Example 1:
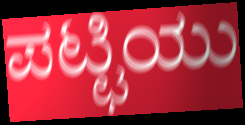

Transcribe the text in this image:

ಪಟ್ಟಿಯು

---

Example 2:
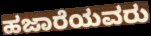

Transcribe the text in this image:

ಹಜಾರೆಯವರು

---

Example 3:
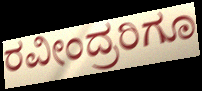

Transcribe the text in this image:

ರವೀಂದ್ರರಿಗೂ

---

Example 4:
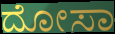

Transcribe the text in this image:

ದೋಸಾ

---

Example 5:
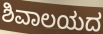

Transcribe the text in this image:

ಶಿವಾಲಯದ